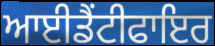
ਆਈਡੈਂਟੀਫਾਇਰ